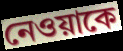
নেওয়াকে